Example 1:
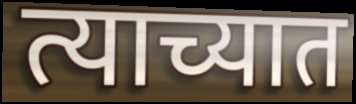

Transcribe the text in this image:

त्याच्यात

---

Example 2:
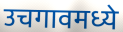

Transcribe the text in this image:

उचगावमध्ये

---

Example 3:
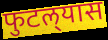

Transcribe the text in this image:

फुटल्यास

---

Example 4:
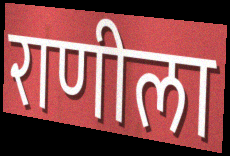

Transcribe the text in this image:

राणीला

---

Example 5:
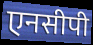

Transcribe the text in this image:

एनसीपी